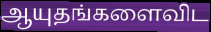
ஆயுதங்களைவிட